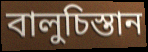
বালুচিস্তান